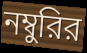
নম্বুরির